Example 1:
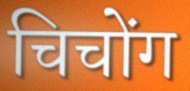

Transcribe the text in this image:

चिचोंग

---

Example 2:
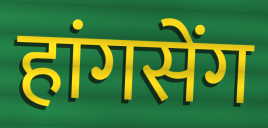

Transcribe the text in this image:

हांगसेंग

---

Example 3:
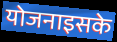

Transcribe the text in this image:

योजनाइसके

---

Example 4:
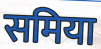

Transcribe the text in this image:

समिया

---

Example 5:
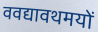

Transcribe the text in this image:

ववद्यावथमयों